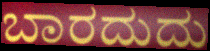
ಬಾರದುದು